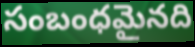
సంబంధమైనది